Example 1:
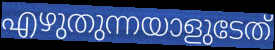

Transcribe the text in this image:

എഴുതുന്നയാളുടേത്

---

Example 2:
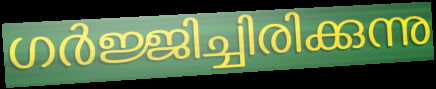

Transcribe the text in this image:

ഗർജ്ജിച്ചിരിക്കുന്നു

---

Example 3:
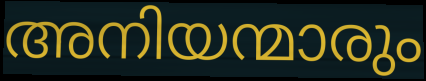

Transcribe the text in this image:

അനിയന്മാരും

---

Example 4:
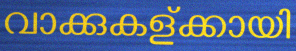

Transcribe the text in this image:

വാക്കുകള്ക്കായി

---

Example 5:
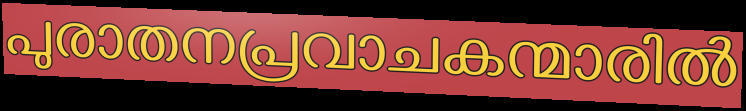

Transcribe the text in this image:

പുരാതനപ്രവാചകന്മാരിൽ